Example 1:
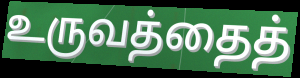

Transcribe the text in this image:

உருவத்தைத்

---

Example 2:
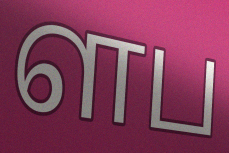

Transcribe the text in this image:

ளப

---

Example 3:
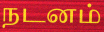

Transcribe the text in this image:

நடனம்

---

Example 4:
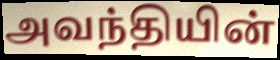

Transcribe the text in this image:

அவந்தியின்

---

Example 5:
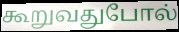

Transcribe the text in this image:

கூறுவதுபோல்